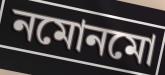
নমোনমো